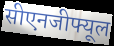
सीएनजीफ्यूल